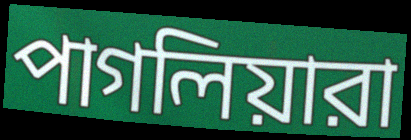
পাগলিয়ারা